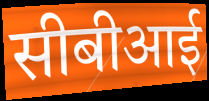
सीबीआई